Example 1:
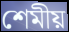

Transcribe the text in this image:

শেমীয়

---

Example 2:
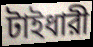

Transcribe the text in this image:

টাইধারী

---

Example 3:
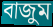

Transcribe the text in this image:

বাজুম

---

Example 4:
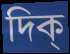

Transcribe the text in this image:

দিক্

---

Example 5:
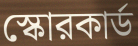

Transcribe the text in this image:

স্কোরকার্ড